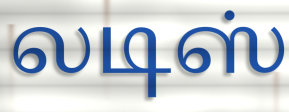
லடிஸ்